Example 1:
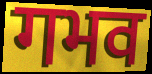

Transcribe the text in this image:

गभव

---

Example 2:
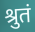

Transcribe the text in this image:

श्रुतं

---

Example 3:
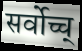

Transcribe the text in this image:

सर्वोच्च्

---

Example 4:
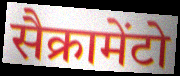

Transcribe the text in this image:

सैक्रामेंटो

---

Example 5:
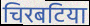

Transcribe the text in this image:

चिरबटिया